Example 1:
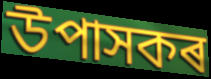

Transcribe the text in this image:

উপাসকৰ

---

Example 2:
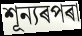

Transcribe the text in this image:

শূন্যৰপৰা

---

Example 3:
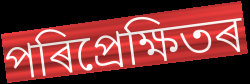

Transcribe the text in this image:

পৰিপ্ৰেক্ষিতৰ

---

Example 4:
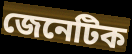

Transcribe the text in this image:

জেনেটিক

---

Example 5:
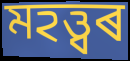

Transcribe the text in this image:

মহত্ত্বৰ